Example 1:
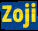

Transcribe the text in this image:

Zoji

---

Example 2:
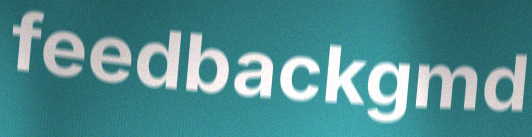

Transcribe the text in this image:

feedbackgmd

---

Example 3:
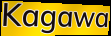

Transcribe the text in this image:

Kagawa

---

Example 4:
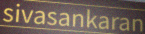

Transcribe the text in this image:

sivasankaran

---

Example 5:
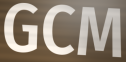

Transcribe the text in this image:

GCM